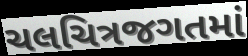
ચલચિત્રજગતમાં